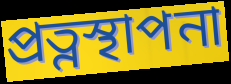
প্রত্নস্থাপনা